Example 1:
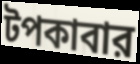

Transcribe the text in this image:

টপকাবার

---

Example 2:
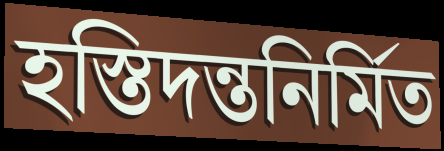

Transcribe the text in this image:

হস্তিদন্তনির্মিত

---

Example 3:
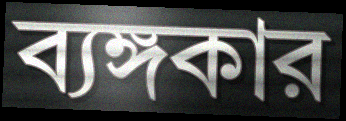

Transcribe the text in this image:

ব্যঙ্গকার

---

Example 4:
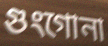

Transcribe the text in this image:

গুংগোনা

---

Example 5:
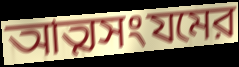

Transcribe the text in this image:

আত্মসংযমের